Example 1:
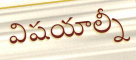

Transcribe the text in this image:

విషయాల్నీ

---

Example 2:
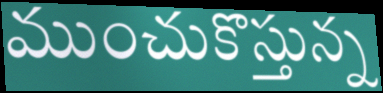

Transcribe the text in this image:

ముంచుకొస్తున్న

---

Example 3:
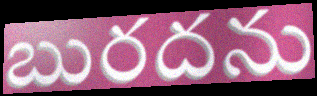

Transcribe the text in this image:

బురదను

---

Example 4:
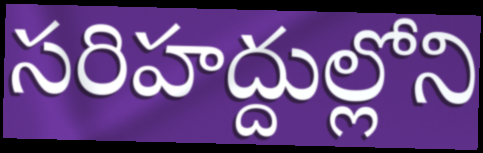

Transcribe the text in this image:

సరిహద్దుల్లోని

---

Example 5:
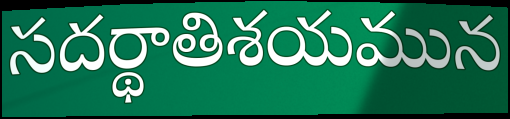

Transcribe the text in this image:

సదర్థాతిశయమున